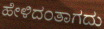
ಹೇಳಿದಂತಾಗದು